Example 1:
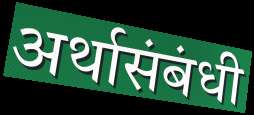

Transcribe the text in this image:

अर्थासंबंधी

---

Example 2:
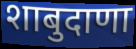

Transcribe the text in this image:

शाबुदाणा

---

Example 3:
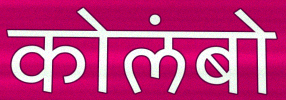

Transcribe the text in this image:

कोलंबो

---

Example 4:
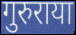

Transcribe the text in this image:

गुरुराया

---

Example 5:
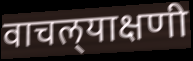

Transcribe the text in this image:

वाचल्याक्षणी